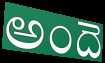
అందె